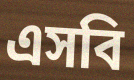
এসবি